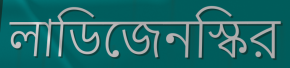
লাডিজেনস্কির